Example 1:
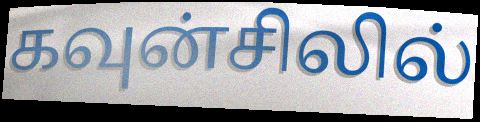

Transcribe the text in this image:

கவுன்சிலில்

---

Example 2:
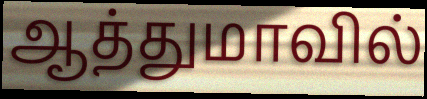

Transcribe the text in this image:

ஆத்துமாவில்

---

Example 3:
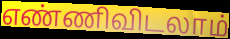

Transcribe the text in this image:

எண்ணிவிடலாம்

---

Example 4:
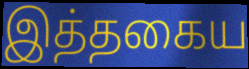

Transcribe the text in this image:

இத்தகைய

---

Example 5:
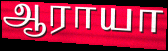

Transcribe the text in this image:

ஆராயா